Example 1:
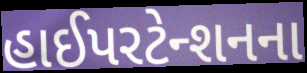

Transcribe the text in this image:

હાઈપરટેન્શનના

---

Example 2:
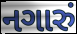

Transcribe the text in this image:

નગારું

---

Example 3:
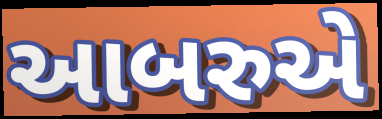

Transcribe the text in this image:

આબરુએ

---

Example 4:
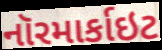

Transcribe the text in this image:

નૉરમાર્કાઇટ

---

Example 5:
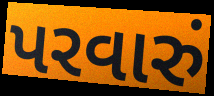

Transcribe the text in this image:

પરવારું